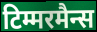
टिम्मरमैन्स